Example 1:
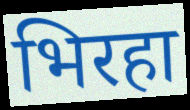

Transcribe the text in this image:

भिरहा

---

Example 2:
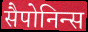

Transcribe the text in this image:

सैपोनिन्स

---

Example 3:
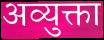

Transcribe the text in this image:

अव्युक्ता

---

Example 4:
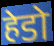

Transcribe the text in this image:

हेडो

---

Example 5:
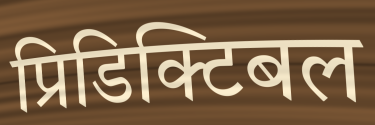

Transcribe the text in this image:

प्रिडिक्टिबल